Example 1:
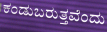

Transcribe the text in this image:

ಕಂಡುಬರುತ್ತವೆಂದು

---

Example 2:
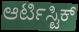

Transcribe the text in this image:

ಆರ್ಟಿಸ್ಟಿಕ್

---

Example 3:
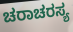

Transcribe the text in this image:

ಚರಾಚರಸ್ಯ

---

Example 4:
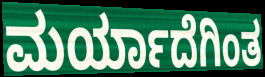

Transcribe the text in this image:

ಮರ್ಯಾದೆಗಿಂತ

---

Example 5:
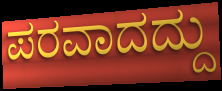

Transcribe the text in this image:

ಪರವಾದದ್ದು